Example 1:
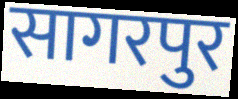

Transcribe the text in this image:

सागरपुर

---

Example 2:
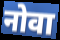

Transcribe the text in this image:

नोवा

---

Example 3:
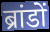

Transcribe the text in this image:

ब्रांडों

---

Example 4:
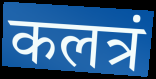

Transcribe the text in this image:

कलत्रं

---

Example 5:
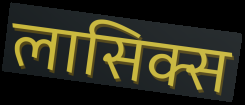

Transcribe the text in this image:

लासिक्स